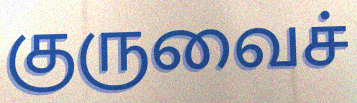
குருவைச்